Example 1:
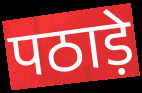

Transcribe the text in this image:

पठाड़े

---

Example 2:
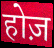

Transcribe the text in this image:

होज़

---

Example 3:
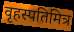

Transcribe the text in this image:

वृहस्पतिमित्र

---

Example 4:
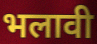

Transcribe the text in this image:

भलावी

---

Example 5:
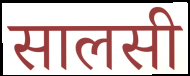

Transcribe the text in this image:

सालसी